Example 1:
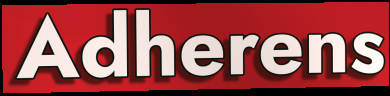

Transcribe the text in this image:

Adherens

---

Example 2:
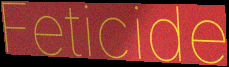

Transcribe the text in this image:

Feticide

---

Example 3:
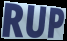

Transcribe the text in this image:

RUP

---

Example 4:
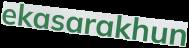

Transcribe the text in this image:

ekasarakhun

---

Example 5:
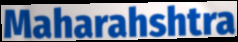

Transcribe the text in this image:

Maharahshtra